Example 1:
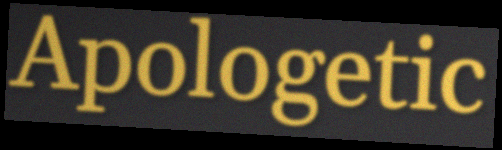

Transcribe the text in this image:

Apologetic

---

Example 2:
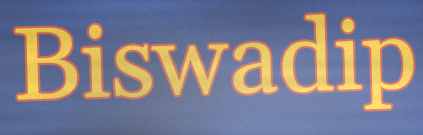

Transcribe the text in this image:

Biswadip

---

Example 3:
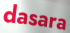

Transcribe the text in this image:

dasara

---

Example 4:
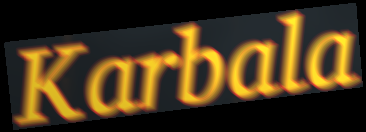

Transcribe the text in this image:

Karbala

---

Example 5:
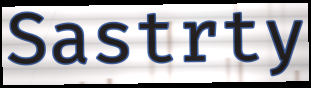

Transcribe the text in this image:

Sastrty